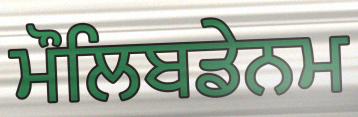
ਮੌਲਿਬਡੇਨਮ